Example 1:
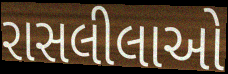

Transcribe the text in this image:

રાસલીલાઓ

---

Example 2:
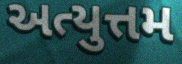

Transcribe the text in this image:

અત્યુત્તમ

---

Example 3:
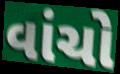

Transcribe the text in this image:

વાંચો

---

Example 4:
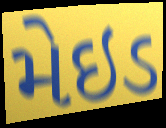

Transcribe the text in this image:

મેઇડ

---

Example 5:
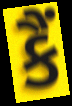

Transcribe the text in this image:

કૈં